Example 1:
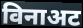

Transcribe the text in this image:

विनाअट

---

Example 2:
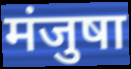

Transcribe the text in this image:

मंजुषा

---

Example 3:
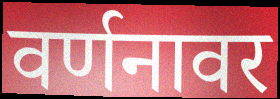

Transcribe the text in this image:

वर्णनावर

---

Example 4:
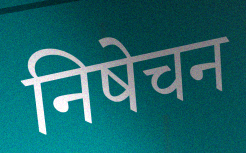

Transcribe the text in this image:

निषेचन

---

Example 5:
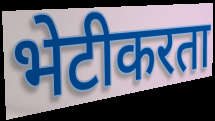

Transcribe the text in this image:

भेटीकरता